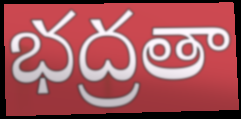
భద్రతా